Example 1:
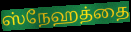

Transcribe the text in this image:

ஸ்நேஹத்தை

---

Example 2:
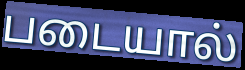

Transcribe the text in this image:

படையால்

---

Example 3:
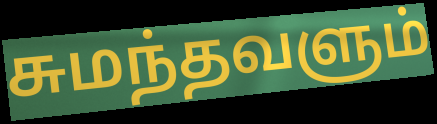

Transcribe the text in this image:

சுமந்தவளும்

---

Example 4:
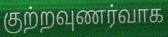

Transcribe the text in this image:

குற்றவுணர்வாக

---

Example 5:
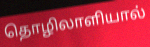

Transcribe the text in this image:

தொழிலாளியால்